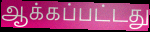
ஆக்கப்பட்டது